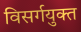
विसर्गयुक्त